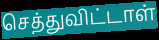
செத்துவிட்டாள்